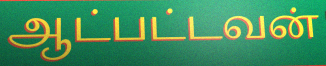
ஆட்பட்டவன்